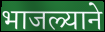
भाजल्याने